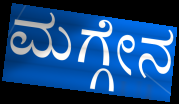
ಮಗ್ಗೇನ